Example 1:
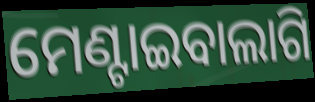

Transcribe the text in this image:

ମେଣ୍ଟାଇବାଲାଗି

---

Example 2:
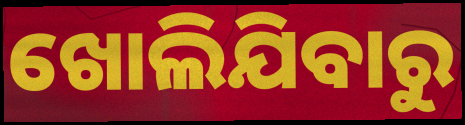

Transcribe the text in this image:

ଖୋଲିଯିବାରୁ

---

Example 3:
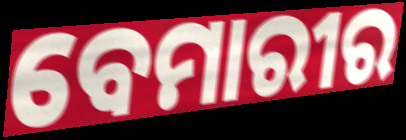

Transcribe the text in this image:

ବେମାରୀର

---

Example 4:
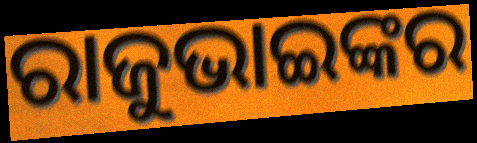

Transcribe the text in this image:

ରାଜୁଭାଇଙ୍କର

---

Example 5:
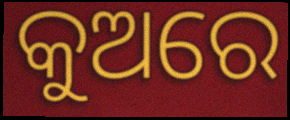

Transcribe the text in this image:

କୁଅରେ